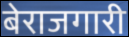
बेराजगारी